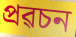
প্ৰৱচন